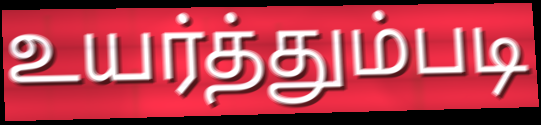
உயர்த்தும்படி